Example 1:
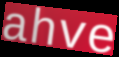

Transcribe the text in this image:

ahve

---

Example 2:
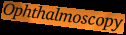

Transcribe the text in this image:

Ophthalmoscopy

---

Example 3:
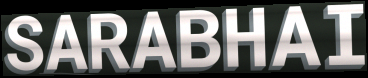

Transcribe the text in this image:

SARABHAI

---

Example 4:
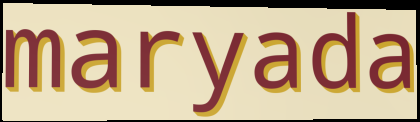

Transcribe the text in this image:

maryada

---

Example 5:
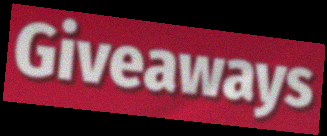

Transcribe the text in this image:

Giveaways